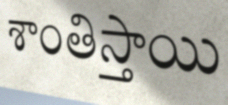
శాంతిస్తాయి